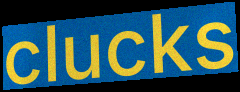
clucks